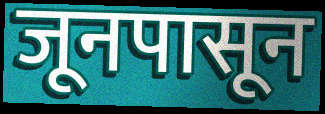
जूनपासून